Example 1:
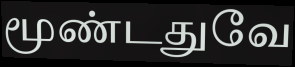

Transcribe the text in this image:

மூண்டதுவே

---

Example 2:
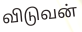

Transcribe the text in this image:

விடுவன்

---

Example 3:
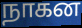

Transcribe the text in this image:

நாகன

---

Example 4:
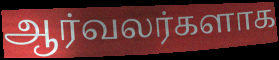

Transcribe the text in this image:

ஆர்வலர்களாக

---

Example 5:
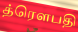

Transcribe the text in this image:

த்ரௌபதி